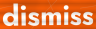
dismiss